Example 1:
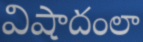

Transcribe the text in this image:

విషాదంలా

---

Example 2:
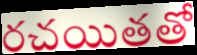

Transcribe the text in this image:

రచయితతో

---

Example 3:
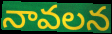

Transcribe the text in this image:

నావలన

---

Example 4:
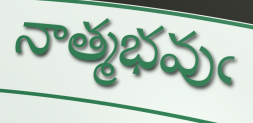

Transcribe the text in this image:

నాత్మభవుఁ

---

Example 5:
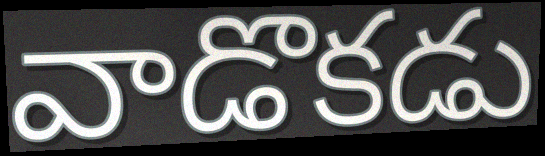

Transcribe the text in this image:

వాడొకడు